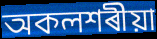
অকলশৰীয়া